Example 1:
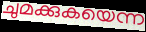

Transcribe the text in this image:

ചുമക്കുകയെന്ന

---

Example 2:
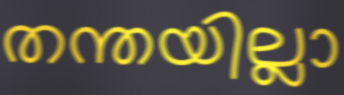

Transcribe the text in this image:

തന്തയില്ലാ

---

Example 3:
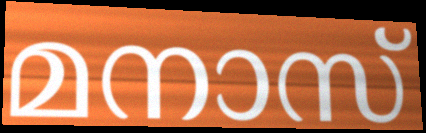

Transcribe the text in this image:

മനാസ്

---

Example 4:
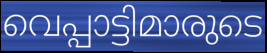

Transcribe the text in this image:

വെപ്പാട്ടിമാരുടെ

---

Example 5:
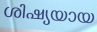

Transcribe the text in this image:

ശിഷ്യയായ